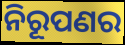
ନିରୂପଣର